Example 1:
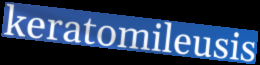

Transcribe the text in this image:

keratomileusis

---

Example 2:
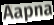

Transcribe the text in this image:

Aapna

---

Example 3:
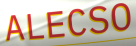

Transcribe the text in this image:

ALECSO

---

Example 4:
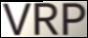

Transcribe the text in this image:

VRP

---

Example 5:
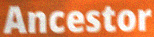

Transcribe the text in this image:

Ancestor